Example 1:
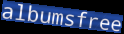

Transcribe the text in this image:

albumsfree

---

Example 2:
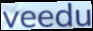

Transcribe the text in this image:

veedu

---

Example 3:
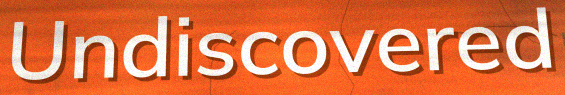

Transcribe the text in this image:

Undiscovered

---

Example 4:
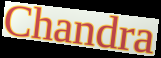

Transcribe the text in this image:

Chandra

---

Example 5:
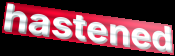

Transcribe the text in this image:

hastened